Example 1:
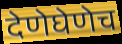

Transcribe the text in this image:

देणेघेणेच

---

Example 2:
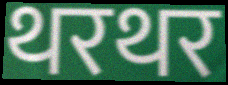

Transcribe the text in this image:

थरथर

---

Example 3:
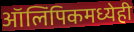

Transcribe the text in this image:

ऑलिंपिकमध्येही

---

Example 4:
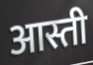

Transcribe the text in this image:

आस्ती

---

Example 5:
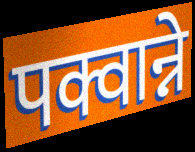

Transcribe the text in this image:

पक्वान्ने